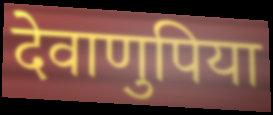
देवाणुपिया